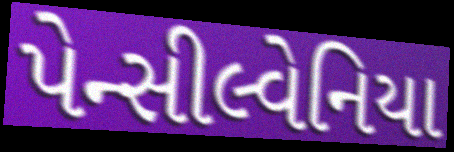
પેન્સીલ્વેનિયા